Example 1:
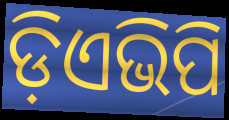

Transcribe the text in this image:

ଡ଼ିଏଭିପି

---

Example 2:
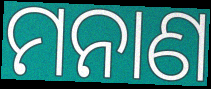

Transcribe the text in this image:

ମନାଣ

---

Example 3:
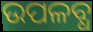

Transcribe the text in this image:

ଉପଳବ୍ଧ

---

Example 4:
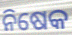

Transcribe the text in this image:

ନିଷେକ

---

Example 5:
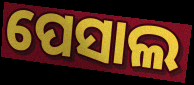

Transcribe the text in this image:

ପେସାଲ